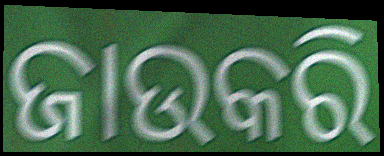
ଜାଉକରି